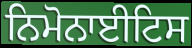
ਨਿਮੋਨਾਈਟਿਸ